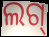
ଲଗ୍